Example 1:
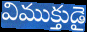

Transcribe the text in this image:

విముక్తుడై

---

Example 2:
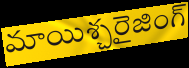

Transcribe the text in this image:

మాయిశ్చరైజింగ్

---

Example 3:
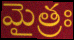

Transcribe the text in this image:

మైత్రః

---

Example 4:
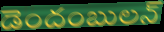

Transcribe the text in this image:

డెందంబులన్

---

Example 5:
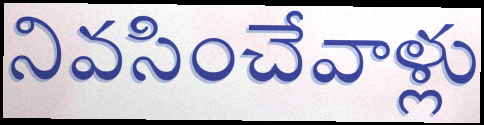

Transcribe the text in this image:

నివసించేవాళ్లు